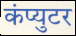
कंप्युटर